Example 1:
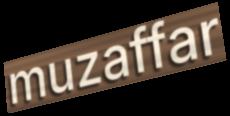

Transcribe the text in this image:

muzaffar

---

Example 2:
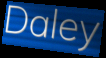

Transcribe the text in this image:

Daley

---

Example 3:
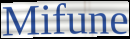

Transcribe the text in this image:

Mifune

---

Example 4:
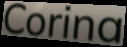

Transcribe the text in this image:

Corina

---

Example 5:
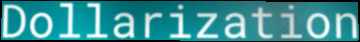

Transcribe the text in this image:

Dollarization